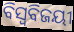
ବିସ୍ଵବିଜୟୀ